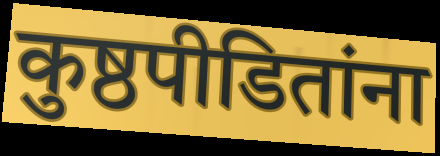
कुष्ठपीडितांना